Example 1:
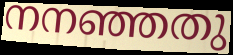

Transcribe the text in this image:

നനഞ്ഞതു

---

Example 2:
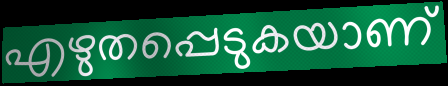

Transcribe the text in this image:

എഴുതപ്പെടുകയാണ്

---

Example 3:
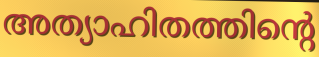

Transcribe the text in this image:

അത്യാഹിതത്തിന്റെ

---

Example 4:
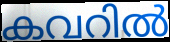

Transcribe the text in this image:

കവറിൽ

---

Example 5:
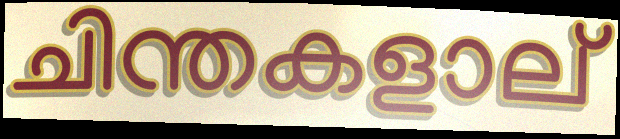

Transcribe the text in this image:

ചിന്തകളാല്